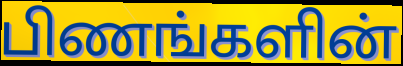
பிணங்களின்